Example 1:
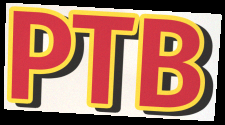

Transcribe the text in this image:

PTB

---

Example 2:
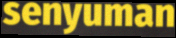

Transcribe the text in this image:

senyuman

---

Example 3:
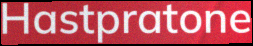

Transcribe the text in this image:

Hastpratone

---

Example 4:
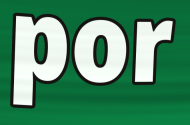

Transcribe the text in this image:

por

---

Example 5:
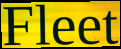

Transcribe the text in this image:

Fleet